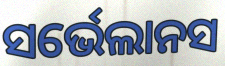
ସର୍ଭେଲାନସ